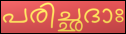
പരിച്ഛദാഃ